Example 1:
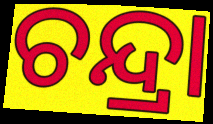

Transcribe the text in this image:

ଚନ୍ଦ୍ରା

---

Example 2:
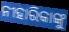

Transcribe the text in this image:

ନୀହାରିକାଙ୍କୁ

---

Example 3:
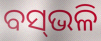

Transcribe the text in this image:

ବସ୍‌ଭଳି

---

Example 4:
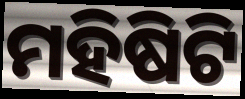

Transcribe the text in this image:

ମହିଷିଟି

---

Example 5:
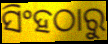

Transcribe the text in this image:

ସିଂହଠାରୁ